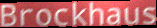
Brockhaus